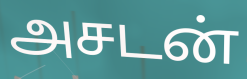
அசடன்